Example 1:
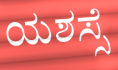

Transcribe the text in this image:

ಯಶಸ್ಸೆ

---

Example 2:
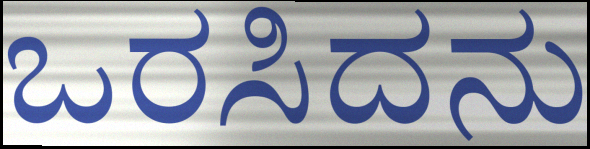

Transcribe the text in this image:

ಒರಸಿದನು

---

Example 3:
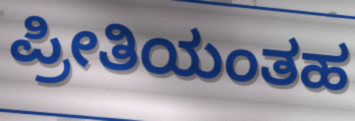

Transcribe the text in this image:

ಪ್ರೀತಿಯಂತಹ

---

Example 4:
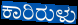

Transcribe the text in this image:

ಕಾರಿರುಳು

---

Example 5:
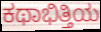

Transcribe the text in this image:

ಕಥಾಭಿತ್ತಿಯ